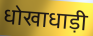
धोखाधाड़ी